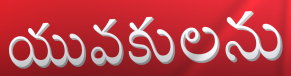
యువకులను